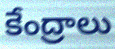
కేంద్రాలు